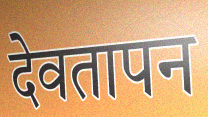
देवतापन